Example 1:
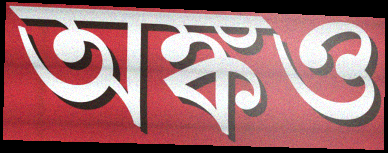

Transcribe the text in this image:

অঙ্কও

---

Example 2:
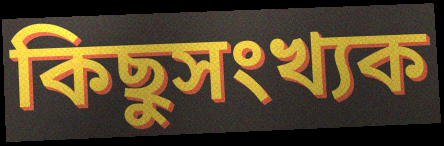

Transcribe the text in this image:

কিছুসংখ্যক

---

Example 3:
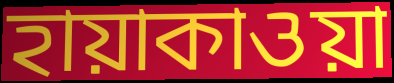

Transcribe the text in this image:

হায়াকাওয়া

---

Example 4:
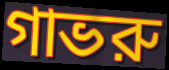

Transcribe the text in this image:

গাভরু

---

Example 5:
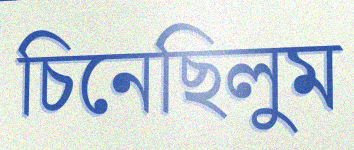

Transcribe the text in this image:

চিনেছিলুম